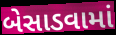
બેસાડવામાં